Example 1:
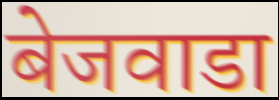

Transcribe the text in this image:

बेजवाडा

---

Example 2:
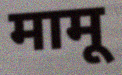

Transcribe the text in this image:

मामू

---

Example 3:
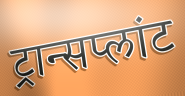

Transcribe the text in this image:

ट्रान्सप्लांट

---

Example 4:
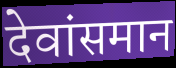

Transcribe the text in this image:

देवांसमान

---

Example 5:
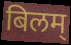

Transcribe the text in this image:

बिलम्